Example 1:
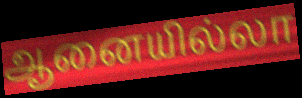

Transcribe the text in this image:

ஆனையில்லா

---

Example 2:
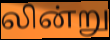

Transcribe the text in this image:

லின்று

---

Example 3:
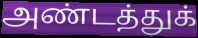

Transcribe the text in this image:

அண்டத்துக்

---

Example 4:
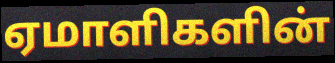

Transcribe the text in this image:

ஏமாளிகளின்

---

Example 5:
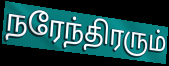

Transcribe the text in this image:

நரேந்திரரும்